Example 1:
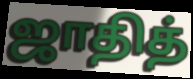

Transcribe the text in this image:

ஜாதித்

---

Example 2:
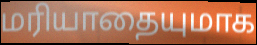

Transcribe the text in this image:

மரியாதையுமாக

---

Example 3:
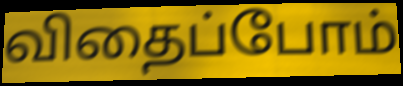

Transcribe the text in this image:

விதைப்போம்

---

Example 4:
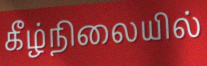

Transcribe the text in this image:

கீழ்நிலையில்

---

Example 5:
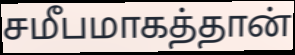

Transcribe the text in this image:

சமீபமாகத்தான்